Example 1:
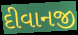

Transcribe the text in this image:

દીવાનજી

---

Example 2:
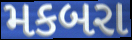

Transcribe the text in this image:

મકબરા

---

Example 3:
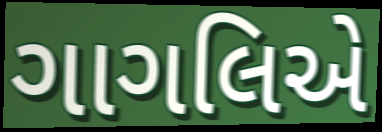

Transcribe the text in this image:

ગાગલિએ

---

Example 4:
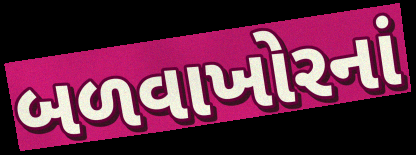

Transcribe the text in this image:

બળવાખોરનાં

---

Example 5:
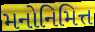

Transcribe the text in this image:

મનોનિમિત્ત